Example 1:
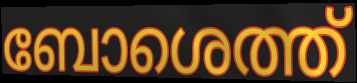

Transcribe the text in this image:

ബോശെത്ത്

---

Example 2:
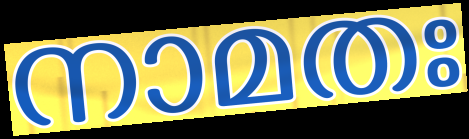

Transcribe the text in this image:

നാമതഃ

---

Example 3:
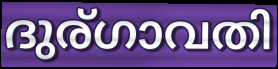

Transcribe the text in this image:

ദുര്ഗാവതി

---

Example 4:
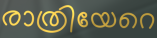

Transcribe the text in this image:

രാത്രിയേറെ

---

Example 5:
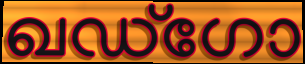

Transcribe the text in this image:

ഖഡ്ഗോ